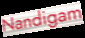
Nandigam